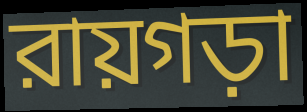
রায়গড়া